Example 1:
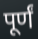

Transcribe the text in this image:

पूर्णं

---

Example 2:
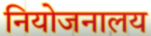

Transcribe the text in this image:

नियोजनालय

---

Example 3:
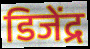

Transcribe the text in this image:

डिजेंद्र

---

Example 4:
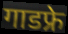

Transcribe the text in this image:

गाडफ्रे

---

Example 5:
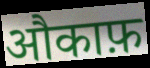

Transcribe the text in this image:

औकाफ़